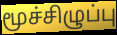
மூச்சிழுப்பு